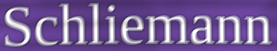
Schliemann